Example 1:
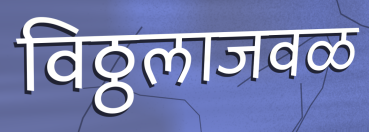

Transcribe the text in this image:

विठ्ठलाजवळ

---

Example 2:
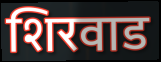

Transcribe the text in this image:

शिरवाड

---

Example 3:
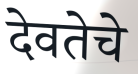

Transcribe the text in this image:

देवतेचे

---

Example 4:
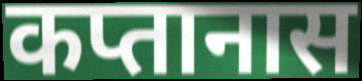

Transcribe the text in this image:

कप्तानास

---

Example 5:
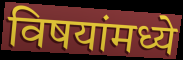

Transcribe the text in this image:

विषयांमध्ये